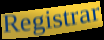
Registrar